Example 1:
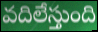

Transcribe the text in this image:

వదిలేస్తుంది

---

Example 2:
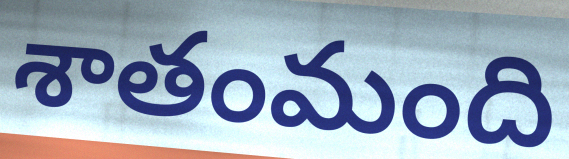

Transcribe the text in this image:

శాతంమంది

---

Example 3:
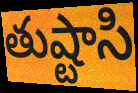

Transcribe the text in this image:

తుష్టాసి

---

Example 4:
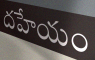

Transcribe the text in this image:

దహేయం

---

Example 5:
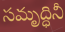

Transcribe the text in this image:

సమృద్ధినీ